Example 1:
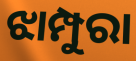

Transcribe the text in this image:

ଝାମ୍ପୁରା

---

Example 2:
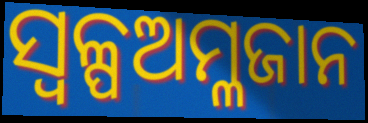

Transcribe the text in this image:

ସ୍ୱଳ୍ପଅମ୍ଳଜାନ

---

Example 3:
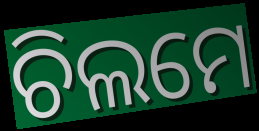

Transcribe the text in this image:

ଚିଲମେ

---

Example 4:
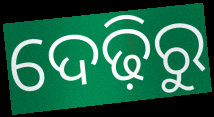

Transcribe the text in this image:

ଦେଢ଼ିରୁ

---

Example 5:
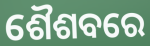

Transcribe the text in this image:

ଶୈଶବରେ